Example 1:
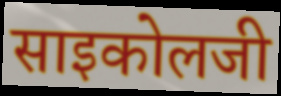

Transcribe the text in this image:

साइकोलजी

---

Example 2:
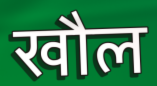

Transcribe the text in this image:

खौल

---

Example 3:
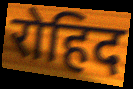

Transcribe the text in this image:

रोहिद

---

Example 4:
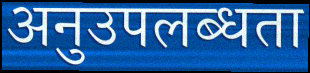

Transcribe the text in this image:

अनुउपलब्धता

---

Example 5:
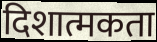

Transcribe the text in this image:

दिशात्मकता